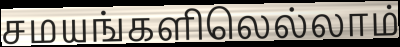
சமயங்களிலெல்லாம்